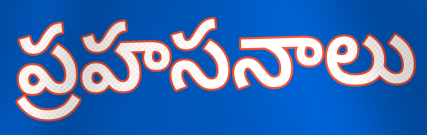
ప్రహసనాలు